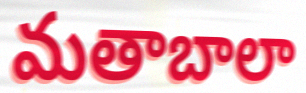
మతాబాలా